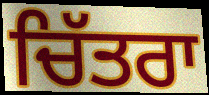
ਚਿੱਤਰਾ